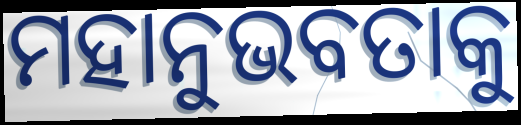
ମହାନୁଭବତାକୁ